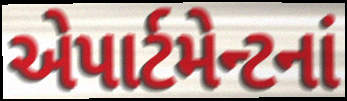
એપાર્ટમેન્ટનાં